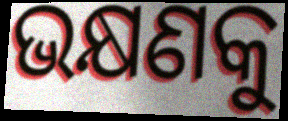
ଭକ୍ଷଣକୁ